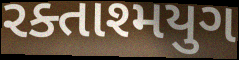
રક્તાશ્મયુગ